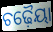
ଚଢ଼ୈୟା